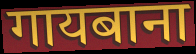
गायबाना